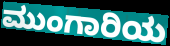
ಮುಂಗಾರಿಯ